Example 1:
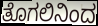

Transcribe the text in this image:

ತೊಗಲಿನಿಂದ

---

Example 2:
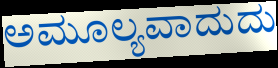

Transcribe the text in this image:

ಅಮೂಲ್ಯವಾದುದು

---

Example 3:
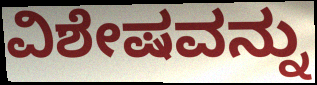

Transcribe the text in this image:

ವಿಶೇಷವನ್ನು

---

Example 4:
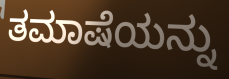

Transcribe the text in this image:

ತಮಾಷೆಯನ್ನು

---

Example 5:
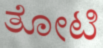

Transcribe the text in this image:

ತೋಟಿ